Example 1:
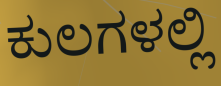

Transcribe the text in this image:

ಕುಲಗಳಲ್ಲಿ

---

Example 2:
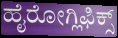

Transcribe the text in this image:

ಹೈರೋಗ್ಲಿಫಿಕ್ಸ್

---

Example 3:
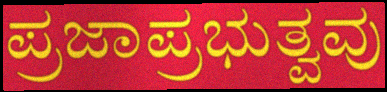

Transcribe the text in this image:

ಪ್ರಜಾಪ್ರಭುತ್ವವು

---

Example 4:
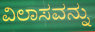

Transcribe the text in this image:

ವಿಲಾಸವನ್ನು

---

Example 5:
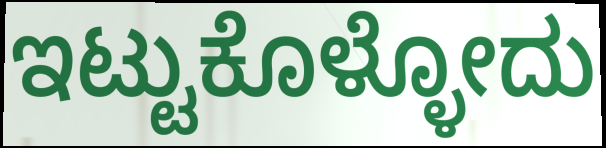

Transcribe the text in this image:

ಇಟ್ಟುಕೊಳ್ಳೋದು